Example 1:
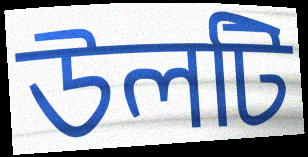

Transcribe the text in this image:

উলটি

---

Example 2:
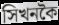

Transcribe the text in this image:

সিখনকৈ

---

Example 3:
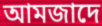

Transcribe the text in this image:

আমজাদে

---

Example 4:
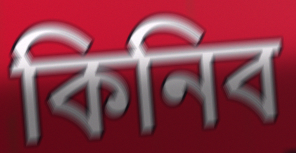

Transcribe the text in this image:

কিনিব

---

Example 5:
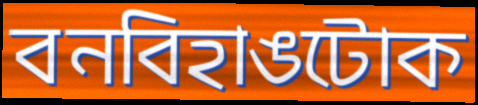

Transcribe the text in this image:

বনবিহাঙটোক